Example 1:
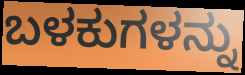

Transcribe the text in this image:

ಬಳಕುಗಳನ್ನು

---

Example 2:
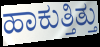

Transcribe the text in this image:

ಹಾಕುತ್ತಿತ್ತು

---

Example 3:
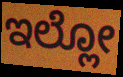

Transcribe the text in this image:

ಇಲ್ಲೋ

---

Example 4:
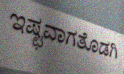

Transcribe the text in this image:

ಇಷ್ಟವಾಗತೊಡಗಿ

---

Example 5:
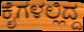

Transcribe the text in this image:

ಕೈಗಳಲ್ಲಿದ್ದ